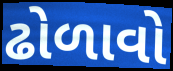
ઢોળાવો